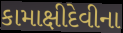
કામાક્ષીદેવીના